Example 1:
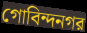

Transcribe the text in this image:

গোবিন্দনগর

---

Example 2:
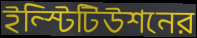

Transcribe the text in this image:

ইন্স্টিটিউশনের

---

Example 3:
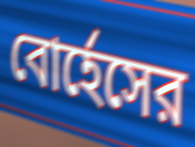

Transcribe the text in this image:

বোর্হেসের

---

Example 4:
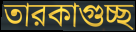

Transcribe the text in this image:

তারকাগুচ্ছ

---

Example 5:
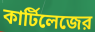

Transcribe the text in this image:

কার্টিলেজের